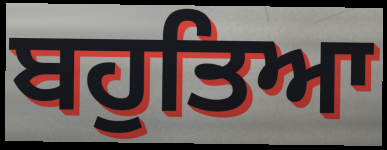
ਬਹੁਤਿਆ